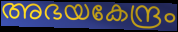
അഭയകേന്ദ്രം